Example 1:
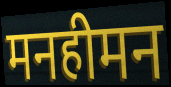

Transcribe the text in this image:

मनहीमन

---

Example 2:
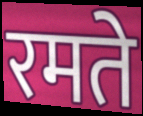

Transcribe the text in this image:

रमते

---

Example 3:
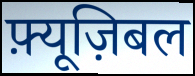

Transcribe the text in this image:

फ़्यूज़िबल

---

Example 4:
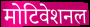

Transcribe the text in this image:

मोटिवेशनल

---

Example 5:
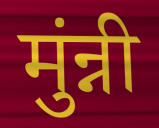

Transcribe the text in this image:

मुंन्नी